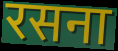
रसना